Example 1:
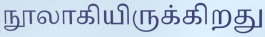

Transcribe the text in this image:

நூலாகியிருக்கிறது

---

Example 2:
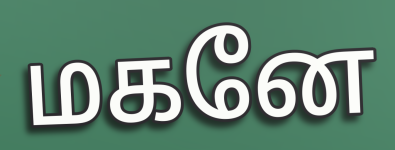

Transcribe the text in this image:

மகனே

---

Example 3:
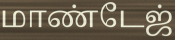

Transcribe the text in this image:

மாண்டேஜ்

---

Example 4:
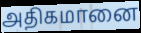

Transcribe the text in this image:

அதிகமானை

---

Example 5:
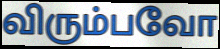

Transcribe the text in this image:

விரும்பவோ